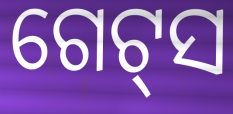
ଗେଟ୍‌ସ